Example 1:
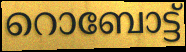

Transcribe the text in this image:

റൊബോട്ട്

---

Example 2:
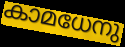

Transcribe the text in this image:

കാമധേനു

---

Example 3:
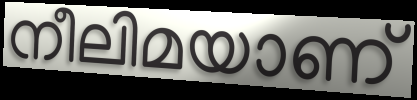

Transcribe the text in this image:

നീലിമയാണ്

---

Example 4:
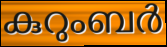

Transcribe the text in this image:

കുറുംബർ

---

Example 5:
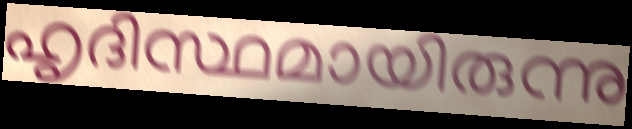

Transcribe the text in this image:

ഹൃദിസ്ഥമായിരുന്നു